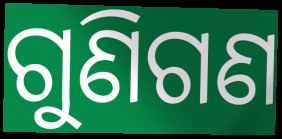
ଗୁଣିଗଣ